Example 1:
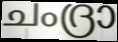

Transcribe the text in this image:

ചംദ്രാ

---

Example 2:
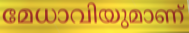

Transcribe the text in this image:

മേധാവിയുമാണ്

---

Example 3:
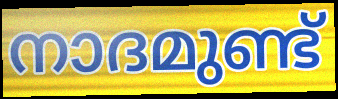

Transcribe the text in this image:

നാദമുണ്ട്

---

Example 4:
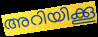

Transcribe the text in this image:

അറിയിക്കൂ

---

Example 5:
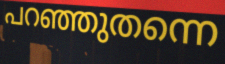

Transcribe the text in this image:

പറഞ്ഞുതന്നെ